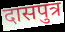
दासपुत्र